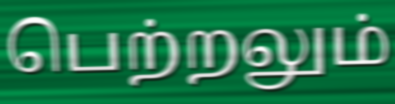
பெற்றலும்